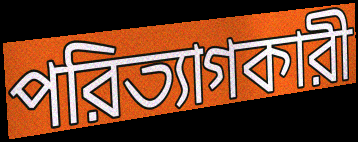
পরিত্যাগকারী